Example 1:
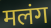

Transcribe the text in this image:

मलंग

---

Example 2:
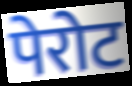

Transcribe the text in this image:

पेरोट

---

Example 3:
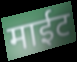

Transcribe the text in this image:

माईट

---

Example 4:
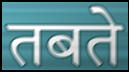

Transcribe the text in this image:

तबते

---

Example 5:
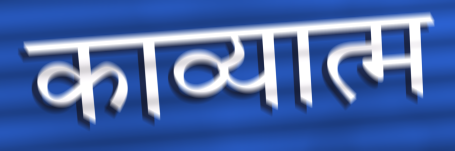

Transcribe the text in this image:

काव्यात्म